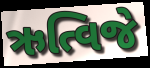
ઋત્વિજે